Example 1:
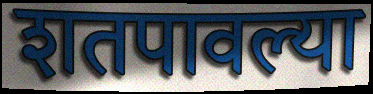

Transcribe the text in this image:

शतपावल्या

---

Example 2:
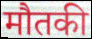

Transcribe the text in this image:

मौतकी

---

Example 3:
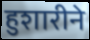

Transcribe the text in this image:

हुशारीने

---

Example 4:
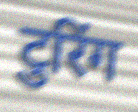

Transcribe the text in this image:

टुरिंग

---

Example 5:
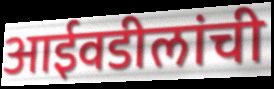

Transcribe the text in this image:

आईवडीलांची